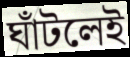
ঘাঁটলেই